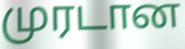
முரடான